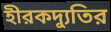
হীরকদ্যুতির